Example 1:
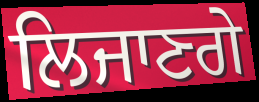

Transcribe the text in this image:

ਲਿਜਾਣਗੇ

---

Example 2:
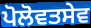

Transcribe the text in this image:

ਪੋਲੋਵਤਸੇਵ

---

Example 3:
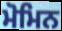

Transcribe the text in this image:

ਮੋਮਿਨ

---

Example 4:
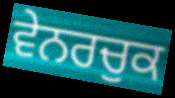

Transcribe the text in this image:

ਵੇਨਰਚੁਕ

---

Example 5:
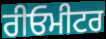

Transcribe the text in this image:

ਰੀਓਮੀਟਰ